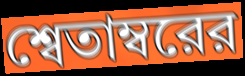
শ্বেতাম্বরের